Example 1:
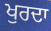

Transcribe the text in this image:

ਖੁਰਦਾ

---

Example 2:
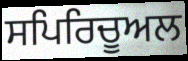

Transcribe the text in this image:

ਸਪਿਰਿਚੂਅਲ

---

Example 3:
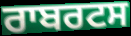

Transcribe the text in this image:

ਰਾਬਰਟਸ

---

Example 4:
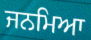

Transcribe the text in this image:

ਜਨਮਿਆ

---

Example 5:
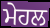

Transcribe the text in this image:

ਮੇਹਲ